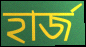
হার্জ